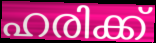
ഹരിക്ക്